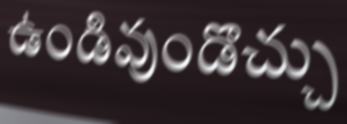
ఉండివుండొచ్చు